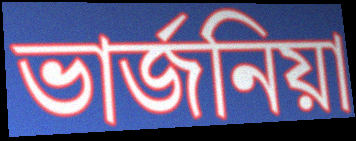
ভাৰ্জনিয়া